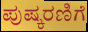
ಪುಷ್ಕರಣಿಗೆ